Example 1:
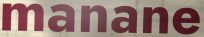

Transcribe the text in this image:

manane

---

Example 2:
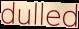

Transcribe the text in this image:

dulled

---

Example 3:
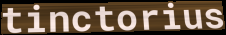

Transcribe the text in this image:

tinctorius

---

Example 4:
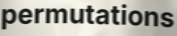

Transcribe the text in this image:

permutations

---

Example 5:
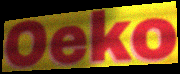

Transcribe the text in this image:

Oeko